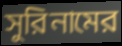
সুরিনামের